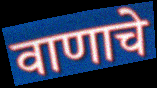
वाणाचे